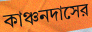
কাঞ্চনদাসের